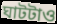
ঘাটটাও